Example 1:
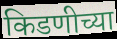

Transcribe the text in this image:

किडणीच्या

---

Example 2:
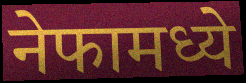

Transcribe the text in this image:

नेफामध्ये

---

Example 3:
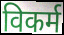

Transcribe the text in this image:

विकर्म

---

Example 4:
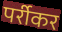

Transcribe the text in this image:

पर्रीकर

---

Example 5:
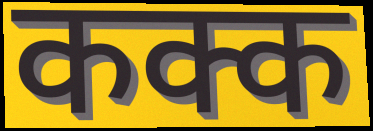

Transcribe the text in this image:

कक्क